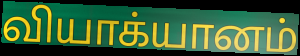
வியாக்யானம்